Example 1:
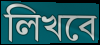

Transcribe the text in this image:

লিখবে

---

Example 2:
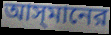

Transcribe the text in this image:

আস্‌মানের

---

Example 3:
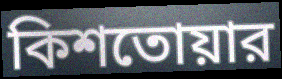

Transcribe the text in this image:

কিশতোয়ার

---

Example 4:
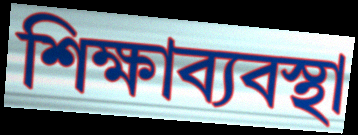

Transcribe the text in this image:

শিক্ষাব্যবস্থা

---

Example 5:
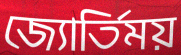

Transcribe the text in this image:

জ্যোর্তিময়